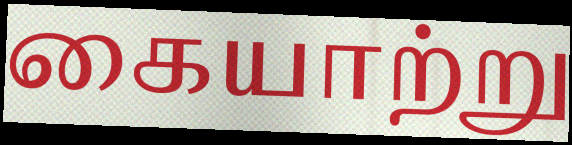
கையாற்று